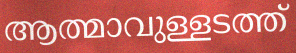
ആത്മാവുള്ളടത്ത്